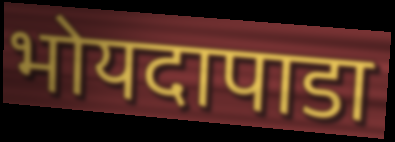
भोयदापाडा